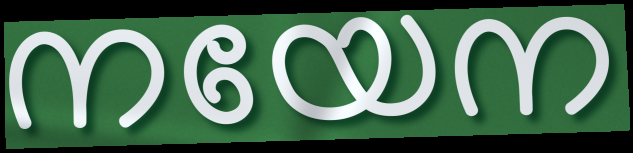
നയേന